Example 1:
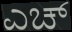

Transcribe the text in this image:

ಎಚ್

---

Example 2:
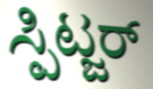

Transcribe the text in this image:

ಸ್ಪಿಟ್ಜರ್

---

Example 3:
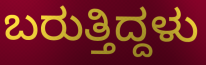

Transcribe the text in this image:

ಬರುತ್ತಿದ್ದಳು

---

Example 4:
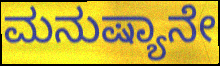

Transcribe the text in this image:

ಮನುಷ್ಯಾನೇ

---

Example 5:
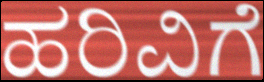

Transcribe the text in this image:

ಹರಿವಿಗೆ